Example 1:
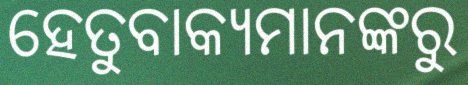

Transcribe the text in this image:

ହେତୁବାକ୍ୟମାନଙ୍କରୁ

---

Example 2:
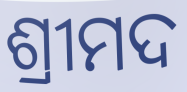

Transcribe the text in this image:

ଶ୍ରୀମଦ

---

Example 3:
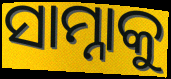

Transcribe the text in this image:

ସାମ୍ନାକୁ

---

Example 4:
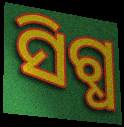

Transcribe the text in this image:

ସିଗ୍ଧ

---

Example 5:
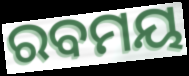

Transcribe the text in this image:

ରବମୟ